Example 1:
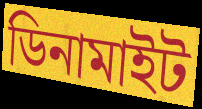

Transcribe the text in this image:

ডিনামাইট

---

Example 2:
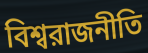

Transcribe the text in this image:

বিশ্বরাজনীতি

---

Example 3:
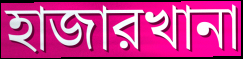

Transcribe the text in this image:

হাজারখানা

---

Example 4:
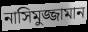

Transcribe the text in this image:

নাসিমুজ্জামান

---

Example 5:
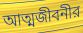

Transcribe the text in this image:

আত্মজীবনীর